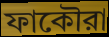
ফাকৌরা